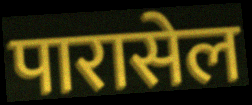
पारासेल